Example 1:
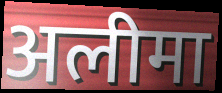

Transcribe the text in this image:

अलीमा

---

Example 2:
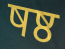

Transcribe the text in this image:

षष्ठ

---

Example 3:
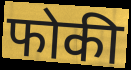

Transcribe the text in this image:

फोकी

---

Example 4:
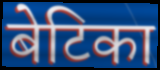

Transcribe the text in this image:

बेटिका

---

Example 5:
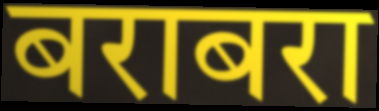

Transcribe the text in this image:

बराबरा